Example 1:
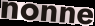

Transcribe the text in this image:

nonne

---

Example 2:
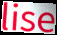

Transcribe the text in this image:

lise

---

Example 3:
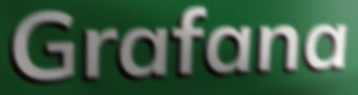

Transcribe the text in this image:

Grafana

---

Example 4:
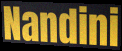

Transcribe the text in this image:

Nandini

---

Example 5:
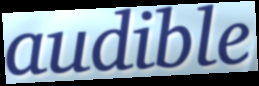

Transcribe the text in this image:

audible